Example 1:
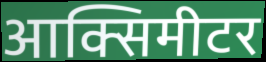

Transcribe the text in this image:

आक्सिमीटर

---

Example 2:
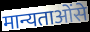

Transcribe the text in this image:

मान्यताओंसे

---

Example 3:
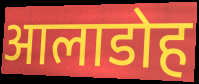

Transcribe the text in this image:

आलाडोह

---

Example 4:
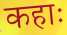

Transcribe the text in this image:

कहाः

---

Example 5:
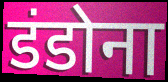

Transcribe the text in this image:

डंडोना